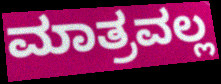
ಮಾತ್ರವಲ್ಲ